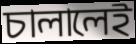
চালালেই